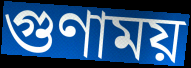
গুণাময়